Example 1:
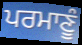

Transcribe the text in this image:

ਪਰਮਾਣੂੰ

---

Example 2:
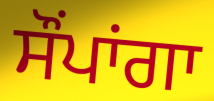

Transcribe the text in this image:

ਸੌਂਪਾਂਗਾ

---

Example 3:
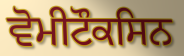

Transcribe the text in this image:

ਵੋਮੀਟੌਕਸਿਨ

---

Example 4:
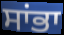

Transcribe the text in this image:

ਸਾਂਭਾ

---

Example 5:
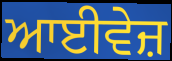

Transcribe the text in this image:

ਆਈਵੇਜ਼